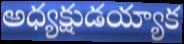
అధ్యక్షుడయ్యాక